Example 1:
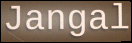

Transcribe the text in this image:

Jangal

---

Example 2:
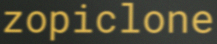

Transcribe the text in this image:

zopiclone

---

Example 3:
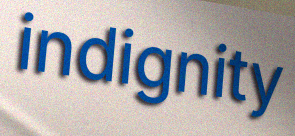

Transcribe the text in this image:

indignity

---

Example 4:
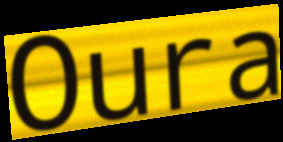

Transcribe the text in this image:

Oura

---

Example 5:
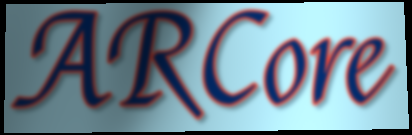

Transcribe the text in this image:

ARCore